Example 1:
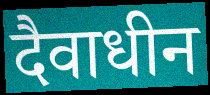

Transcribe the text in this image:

दैवाधीन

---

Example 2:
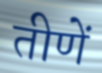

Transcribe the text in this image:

तीणें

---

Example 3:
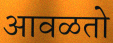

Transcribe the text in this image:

आवळतो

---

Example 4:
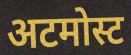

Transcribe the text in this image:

अटमोस्ट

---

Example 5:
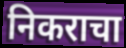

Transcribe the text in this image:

निकराचा